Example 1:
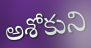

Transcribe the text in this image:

అశోకుని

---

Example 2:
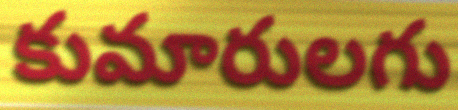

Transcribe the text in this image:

కుమారులగు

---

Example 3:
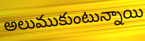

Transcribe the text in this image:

అలుముకుంటున్నాయి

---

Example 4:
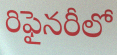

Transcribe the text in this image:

రిఫైనరీలో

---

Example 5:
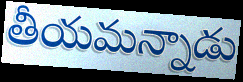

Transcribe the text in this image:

తీయమన్నాడు